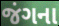
જંગના